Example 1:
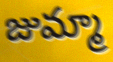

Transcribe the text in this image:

జుమ్మా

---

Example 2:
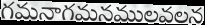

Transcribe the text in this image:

గమనాగమనములవలన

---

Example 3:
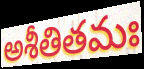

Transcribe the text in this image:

అశీతితమః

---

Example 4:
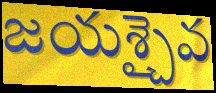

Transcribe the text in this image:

జయశ్చైవ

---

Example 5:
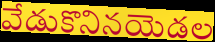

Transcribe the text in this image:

వేడుకొనినయెడల